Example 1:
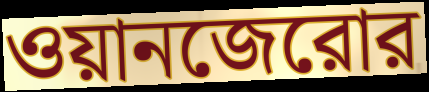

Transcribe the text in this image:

ওয়ানজেরোর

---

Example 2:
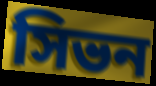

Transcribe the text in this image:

সিভন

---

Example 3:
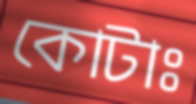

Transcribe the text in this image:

কোটাঃ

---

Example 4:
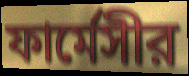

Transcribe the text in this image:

ফার্মেসীর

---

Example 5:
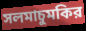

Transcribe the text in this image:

সলমাচুমকির